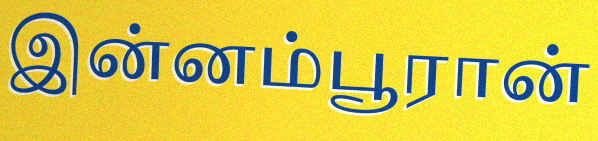
இன்னம்பூரான்